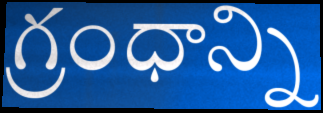
గ్రంధాన్ని